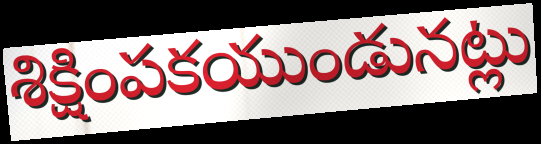
శిక్షింపకయుండునట్లు